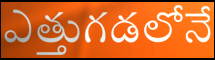
ఎత్తుగడలోనే